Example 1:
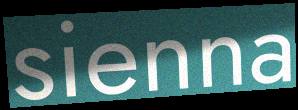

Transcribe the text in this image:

sienna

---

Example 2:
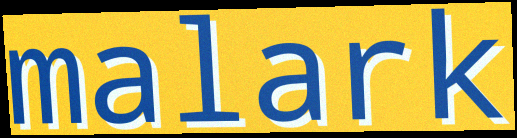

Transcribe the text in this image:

malark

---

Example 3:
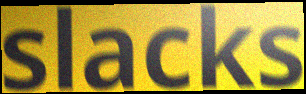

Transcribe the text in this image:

slacks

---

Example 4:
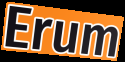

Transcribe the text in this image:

Erum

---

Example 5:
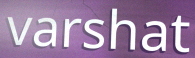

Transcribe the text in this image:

varshat